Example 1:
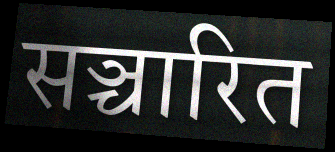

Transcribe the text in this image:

सञ्चारित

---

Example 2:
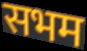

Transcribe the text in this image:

सभम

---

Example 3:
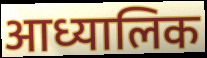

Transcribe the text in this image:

आध्यालिक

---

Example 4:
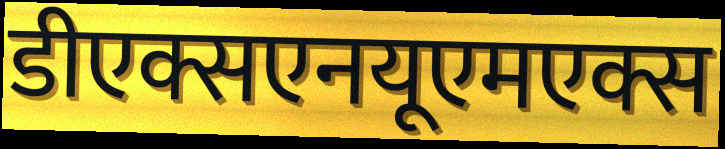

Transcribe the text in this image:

डीएक्सएनयूएमएक्स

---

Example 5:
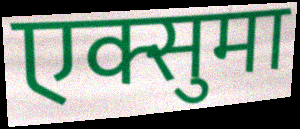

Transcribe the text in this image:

एक्सुमा